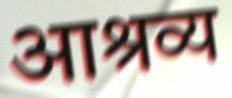
आश्रव्य